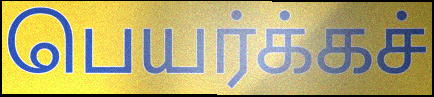
பெயர்க்கச்